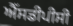
ਐੱਸਡੀਪੀਸੀ